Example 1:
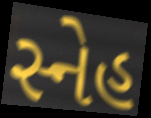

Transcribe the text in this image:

સ્નેહ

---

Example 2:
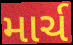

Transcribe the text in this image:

માર્ચ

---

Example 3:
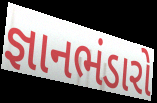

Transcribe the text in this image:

જ્ઞાનભંડારો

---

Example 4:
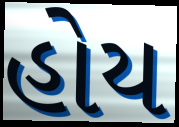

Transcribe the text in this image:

હોય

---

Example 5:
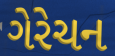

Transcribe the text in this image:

ગેરેચન